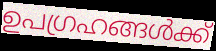
ഉപഗ്രഹങ്ങൾക്ക്